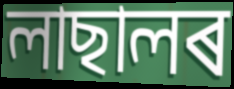
লাছালৰ